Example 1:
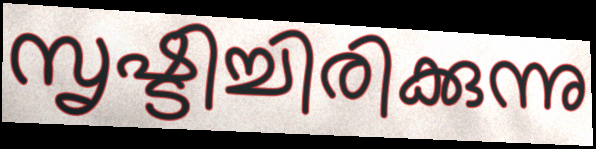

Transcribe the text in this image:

സൃഷ്ടിച്ചിരിക്കുന്നു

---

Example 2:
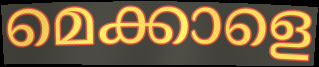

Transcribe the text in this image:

മെക്കാളെ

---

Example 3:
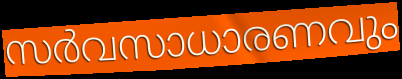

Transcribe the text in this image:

സർവസാധാരണവും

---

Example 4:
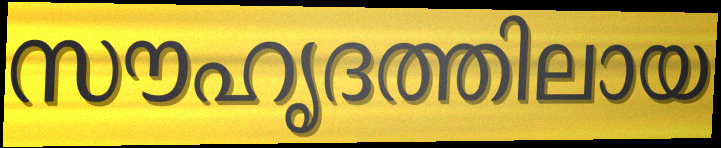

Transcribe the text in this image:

സൗഹൃദത്തിലായ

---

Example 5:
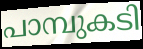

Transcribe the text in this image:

പാമ്പുകടി